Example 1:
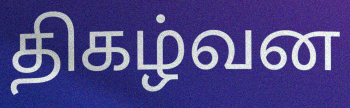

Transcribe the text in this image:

திகழ்வன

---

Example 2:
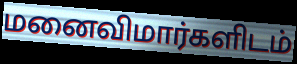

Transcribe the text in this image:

மனைவிமார்களிடம்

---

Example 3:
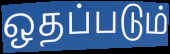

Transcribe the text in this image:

ஒதப்படும்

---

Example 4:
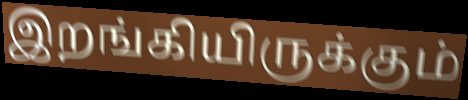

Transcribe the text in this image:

இறங்கியிருக்கும்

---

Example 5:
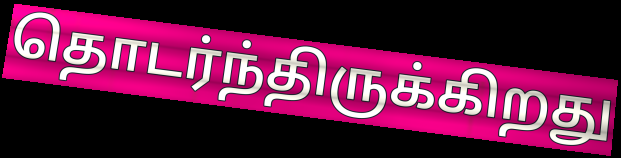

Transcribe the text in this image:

தொடர்ந்திருக்கிறது